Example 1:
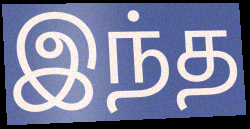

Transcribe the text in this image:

இந்த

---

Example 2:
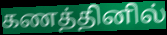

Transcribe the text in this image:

கணத்தினில்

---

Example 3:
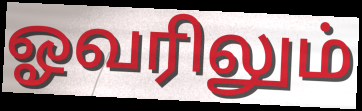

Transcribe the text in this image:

ஓவரிலும்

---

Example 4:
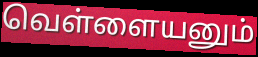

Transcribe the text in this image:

வெள்ளையனும்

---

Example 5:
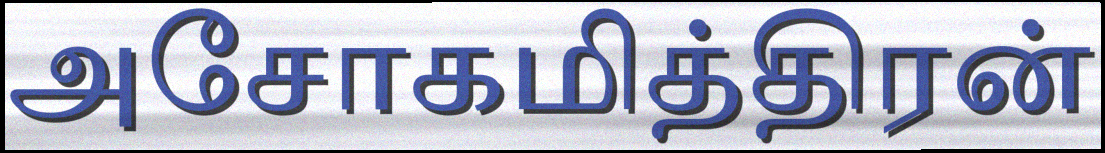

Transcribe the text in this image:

அசோகமித்திரன்